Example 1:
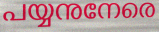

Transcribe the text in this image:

പയ്യനുനേരെ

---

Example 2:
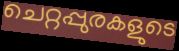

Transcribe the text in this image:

ചെറ്റപ്പുരകളുടെ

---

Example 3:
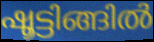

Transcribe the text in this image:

ഷൂട്ടിങ്ങിൽ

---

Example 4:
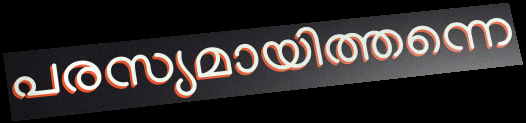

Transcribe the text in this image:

പരസ്യമായിത്തന്നെ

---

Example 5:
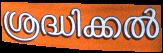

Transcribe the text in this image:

ശ്രദ്ധിക്കൽ